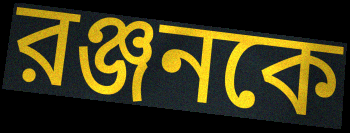
রঞ্জনকে